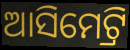
ଆସିମେଟ୍ରି